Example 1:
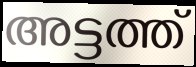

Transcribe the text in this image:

അട്ടത്ത്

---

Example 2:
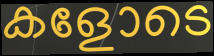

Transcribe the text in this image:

കളോടെ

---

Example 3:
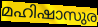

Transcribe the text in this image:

മഹിഷാസുര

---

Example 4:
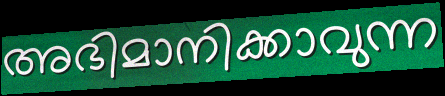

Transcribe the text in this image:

അഭിമാനിക്കാവുന്ന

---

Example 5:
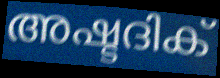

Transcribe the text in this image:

അഷ്ടദിക്